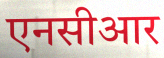
एनसीआर